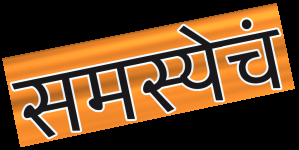
समस्येचं